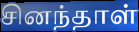
சினந்தாள்